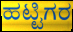
ಹಟ್ಟಿಗರ